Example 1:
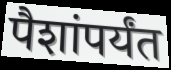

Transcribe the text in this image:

पैशांपर्यंत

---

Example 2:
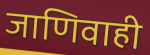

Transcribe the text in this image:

जाणिवाही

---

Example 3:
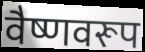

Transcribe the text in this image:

वैष्णवरूप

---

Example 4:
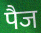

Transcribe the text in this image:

पैज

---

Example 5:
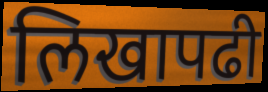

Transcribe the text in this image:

लिखापढी